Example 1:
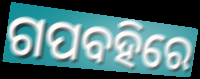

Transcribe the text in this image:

ଗପବହିରେ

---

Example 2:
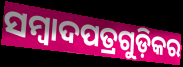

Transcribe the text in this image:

ସମ୍ୱାଦପତ୍ରଗୁଡ଼ିକର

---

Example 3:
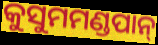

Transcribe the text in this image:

କୁସୁମମଣ୍ଡପାନ୍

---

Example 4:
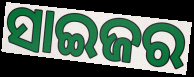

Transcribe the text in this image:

ସାଇଜର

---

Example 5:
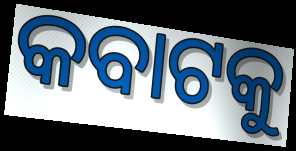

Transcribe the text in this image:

କବାଟକୁ